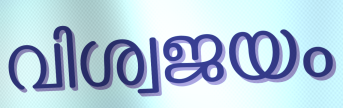
വിശ്വജയം